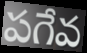
పగేవ